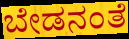
ಬೇಡನಂತೆ